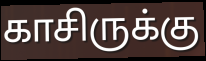
காசிருக்கு